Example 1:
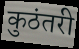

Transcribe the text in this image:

कुठंतरी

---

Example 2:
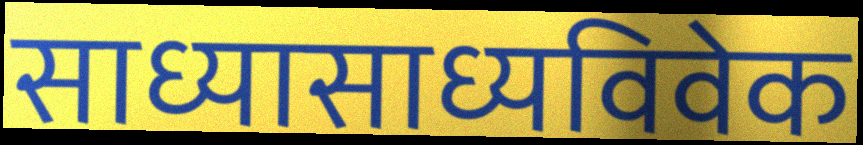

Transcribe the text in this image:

साध्यासाध्यविवेक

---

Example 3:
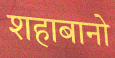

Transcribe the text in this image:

शहाबानो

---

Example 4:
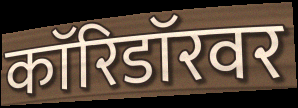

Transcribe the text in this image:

कॉरिडॉरवर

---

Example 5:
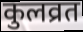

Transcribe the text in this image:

कुलव्रत